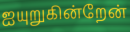
ஐயுறுகின்றேன்